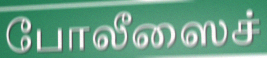
போலீஸைச்